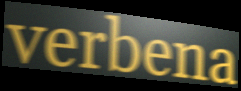
verbena